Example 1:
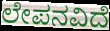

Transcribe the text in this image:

ಲೇಪನವಿದೆ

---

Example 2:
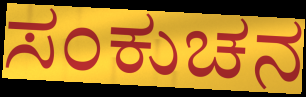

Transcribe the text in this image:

ಸಂಕುಚನ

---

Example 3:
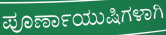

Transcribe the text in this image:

ಪೂರ್ಣಾಯುಷಿಗಳಾಗಿ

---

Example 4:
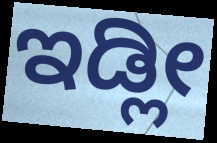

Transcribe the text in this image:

ಇಡ್ಲೀ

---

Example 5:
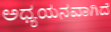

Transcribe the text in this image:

ಅಧ್ಯಯನವಾಗಿದೆ